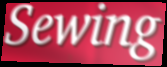
Sewing